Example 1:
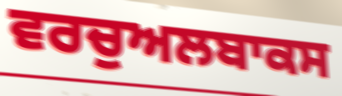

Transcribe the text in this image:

ਵਰਚੁਅਲਬਾਕਸ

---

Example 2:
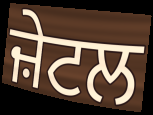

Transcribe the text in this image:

ਜ਼ੇਟਲ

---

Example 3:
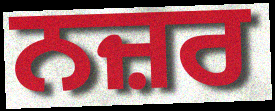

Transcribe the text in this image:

ਨਜ਼ਰ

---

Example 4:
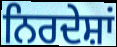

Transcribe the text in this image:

ਨਿਰਦੇਸ਼ਾਂ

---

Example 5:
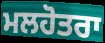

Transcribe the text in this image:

ਮਲਹੋਤਰਾ